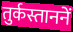
तुर्कस्ताननें